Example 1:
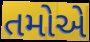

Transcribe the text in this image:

તમોએ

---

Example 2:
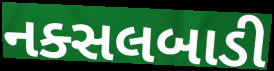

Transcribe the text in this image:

નક્સલબાડી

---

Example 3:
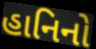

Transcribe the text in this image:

હાનિનો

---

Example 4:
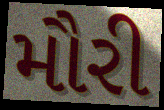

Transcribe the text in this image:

મૌરી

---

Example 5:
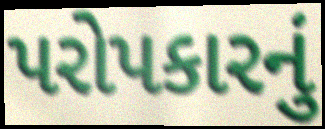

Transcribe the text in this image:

પરોપકારનું